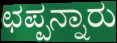
ಛಪ್ಪನ್ನಾರು